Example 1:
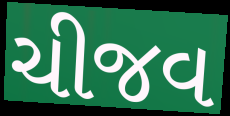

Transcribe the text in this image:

ચીજવ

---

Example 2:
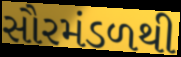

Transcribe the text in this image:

સૌરમંડળથી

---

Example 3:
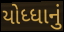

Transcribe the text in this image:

યોધ્ધાનું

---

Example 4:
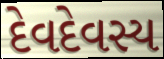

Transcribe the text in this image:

દેવદેવસ્ય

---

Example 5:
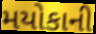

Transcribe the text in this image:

મયોકાની